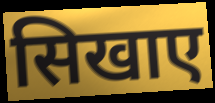
सिखाए